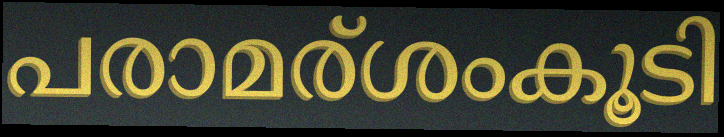
പരാമര്ശംകൂടി